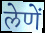
लेणें